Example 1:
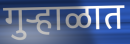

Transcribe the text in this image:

गुऱ्हाळात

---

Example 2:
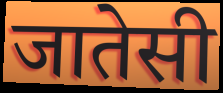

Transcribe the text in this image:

जातेसी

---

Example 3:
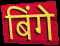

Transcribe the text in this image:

बिंगे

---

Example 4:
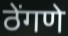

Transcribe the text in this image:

ठेंगणे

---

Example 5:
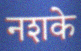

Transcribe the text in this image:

नशके